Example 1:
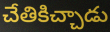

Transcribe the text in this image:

చేతికిచ్చాడు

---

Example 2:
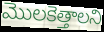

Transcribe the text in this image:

మొలకెత్తాలని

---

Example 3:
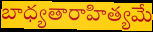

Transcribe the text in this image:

బాధ్యతారాహిత్యమే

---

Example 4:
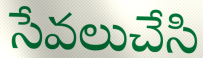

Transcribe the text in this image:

సేవలుచేసి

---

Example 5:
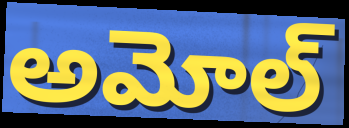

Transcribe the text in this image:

అమోల్